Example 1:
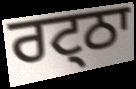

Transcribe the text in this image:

ਰਟ੍ਠਾ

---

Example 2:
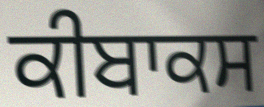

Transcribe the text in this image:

ਕੀਬਾਕਸ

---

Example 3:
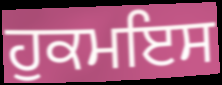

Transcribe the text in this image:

ਹੁਕਮਇਸ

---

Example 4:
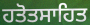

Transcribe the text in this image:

ਹਤੋਤਸਾਹਿਤ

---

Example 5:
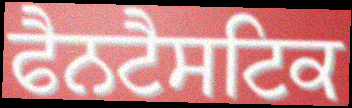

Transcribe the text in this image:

ਫੈਨਟੈਸਟਿਕ